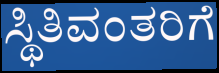
ಸ್ಥಿತಿವಂತರಿಗೆ